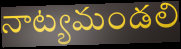
నాట్యమండలి